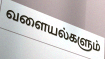
வளையல்களும்